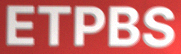
ETPBS